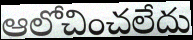
ఆలోచించలేదు